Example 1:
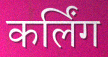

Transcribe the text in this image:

कर्लिंग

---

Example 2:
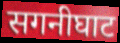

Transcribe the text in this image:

सगनीघाट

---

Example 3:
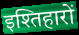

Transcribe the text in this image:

इश्तिहारों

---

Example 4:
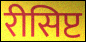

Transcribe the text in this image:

रीसिप्ट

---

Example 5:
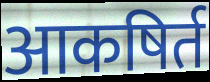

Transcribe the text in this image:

आकषिर्त